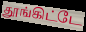
தூங்கிட்டே